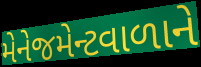
મેનેજમેન્ટવાળાને